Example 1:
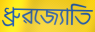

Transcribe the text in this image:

ধ্ৰুৱজ্যোতি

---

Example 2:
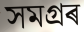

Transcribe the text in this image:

সমগ্ৰৰ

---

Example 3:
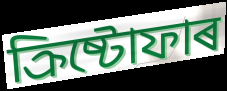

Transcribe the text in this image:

ক্ৰিষ্টোফাৰ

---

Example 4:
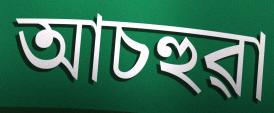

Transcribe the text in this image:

আচহুৱা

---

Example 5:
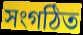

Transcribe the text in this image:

সংগঠিত